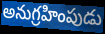
అనుగ్రహింపుడు